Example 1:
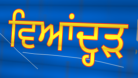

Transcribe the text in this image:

ਵਿਆਂਦ੍ਹੜ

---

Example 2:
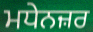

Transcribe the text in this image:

ਮਧੇਨਜ਼ਰ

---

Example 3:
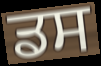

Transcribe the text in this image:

ਡਸ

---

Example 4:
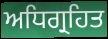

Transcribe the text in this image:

ਅਧਿਗ੍ਰਹਿਤ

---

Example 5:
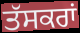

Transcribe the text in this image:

ਤੱਸਕਰਾਂ